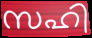
സഹി